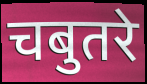
चबुतरे